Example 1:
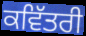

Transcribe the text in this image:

ਕਵਿੱਤਰੀ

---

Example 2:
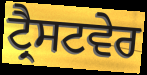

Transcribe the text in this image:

ਟ੍ਰੈਸਟਵੇਰ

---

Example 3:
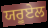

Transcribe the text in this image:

ਯਰੂਏਲ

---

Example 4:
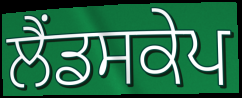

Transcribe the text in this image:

ਲੈਂਡਸਕੇਪ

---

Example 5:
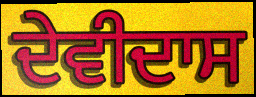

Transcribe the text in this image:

ਦੇਵੀਦਾਸ